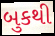
બુકથી